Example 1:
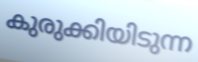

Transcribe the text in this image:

കുരുക്കിയിടുന്ന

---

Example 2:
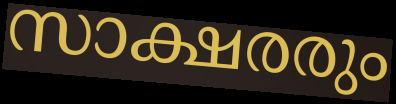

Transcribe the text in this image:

സാക്ഷരരും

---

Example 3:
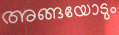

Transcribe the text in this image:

അങ്ങയോടും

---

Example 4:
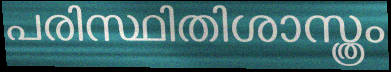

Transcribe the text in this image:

പരിസ്ഥിതിശാസ്ത്രം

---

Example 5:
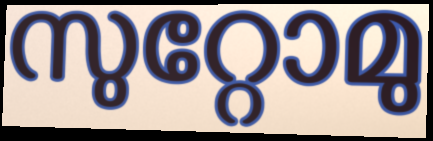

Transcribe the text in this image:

സുറ്റോമു